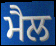
ਮੈਲ